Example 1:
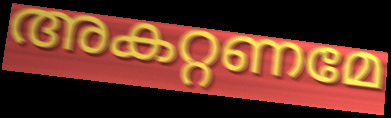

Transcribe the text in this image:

അകറ്റണമേ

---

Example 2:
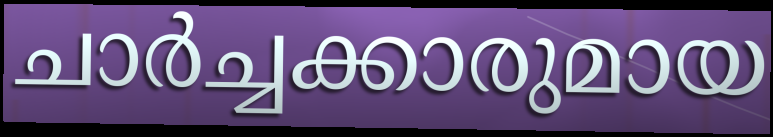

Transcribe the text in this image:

ചാർച്ചക്കാരുമായ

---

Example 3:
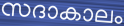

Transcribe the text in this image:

സദാകാലം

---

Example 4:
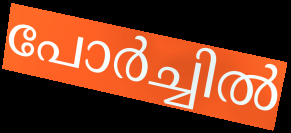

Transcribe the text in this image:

പോർച്ചിൽ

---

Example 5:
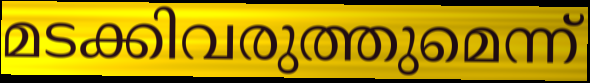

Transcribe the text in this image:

മടക്കിവരുത്തുമെന്ന്